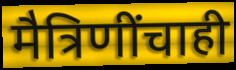
मैत्रिणींचाही